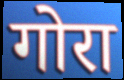
गोरा